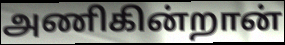
அணிகின்றான்